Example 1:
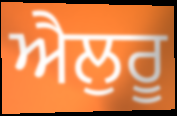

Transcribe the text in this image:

ਐਲੁਰੂ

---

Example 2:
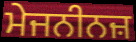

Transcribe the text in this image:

ਮੇਜਨੀਨਜ਼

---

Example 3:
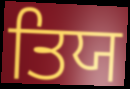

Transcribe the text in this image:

ਤਿਯ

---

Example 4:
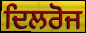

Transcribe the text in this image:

ਦਿਲਰੋਜ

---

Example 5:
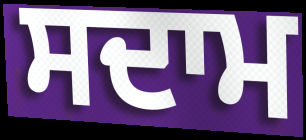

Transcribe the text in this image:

ਸਦਾਮ